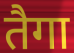
तैगा